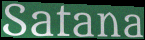
Satana